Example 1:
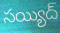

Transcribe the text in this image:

సయ్యిద్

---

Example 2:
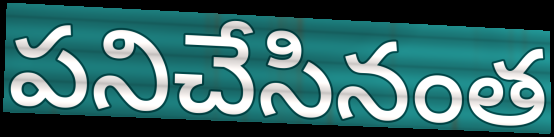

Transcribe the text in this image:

పనిచేసినంత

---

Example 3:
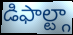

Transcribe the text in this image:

డిఫాల్ట్గా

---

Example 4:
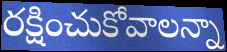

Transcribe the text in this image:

రక్షించుకోవాలన్నా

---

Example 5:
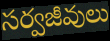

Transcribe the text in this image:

సర్వజీవులు